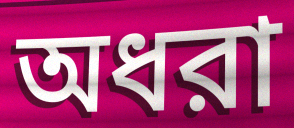
অধরা